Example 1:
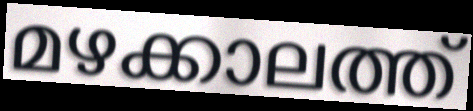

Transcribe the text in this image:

മഴക്കാലത്ത്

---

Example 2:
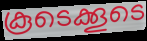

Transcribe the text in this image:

കൂടെക്കൂടെ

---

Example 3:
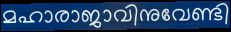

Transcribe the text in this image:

മഹാരാജാവിനുവേണ്ടി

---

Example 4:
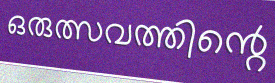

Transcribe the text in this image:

ഒരുത്സവത്തിന്റെ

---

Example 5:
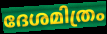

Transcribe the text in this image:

ദേശമിത്രം